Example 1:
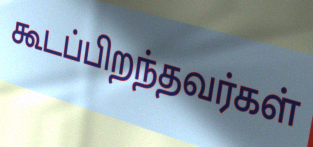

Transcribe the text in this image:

கூடப்பிறந்தவர்கள்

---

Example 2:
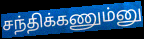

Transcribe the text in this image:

சந்திக்கணும்னு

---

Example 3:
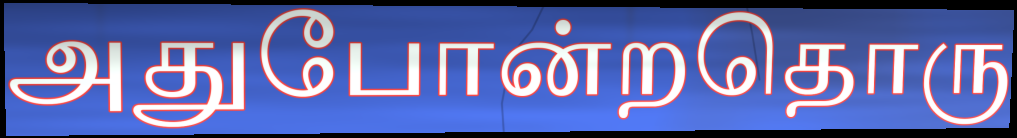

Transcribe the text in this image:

அதுபோன்றதொரு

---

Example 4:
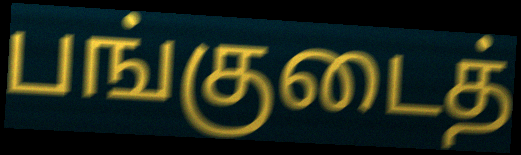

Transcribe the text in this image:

பங்குடைத்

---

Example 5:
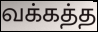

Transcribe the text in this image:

வக்கத்த